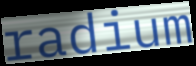
radium